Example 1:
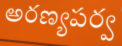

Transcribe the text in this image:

అరణ్యపర్వ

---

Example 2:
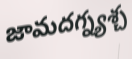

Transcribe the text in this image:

జామదగ్న్యశ్చ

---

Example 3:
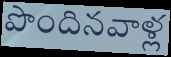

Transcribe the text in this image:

పొందినవాళ్ల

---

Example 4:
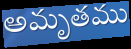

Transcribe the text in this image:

అమృతము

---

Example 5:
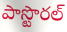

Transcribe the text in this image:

పాస్టొరల్